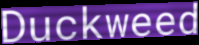
Duckweed